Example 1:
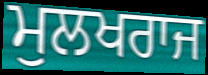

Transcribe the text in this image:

ਮੁਲਖਰਾਜ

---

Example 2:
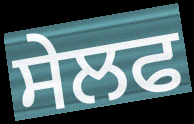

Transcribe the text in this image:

ਸੇਲਫ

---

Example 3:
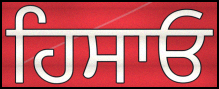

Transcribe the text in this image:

ਹਿਸਾਓ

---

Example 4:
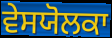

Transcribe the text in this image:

ਵੇਸਯੋਲਕਾ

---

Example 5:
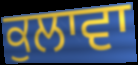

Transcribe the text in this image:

ਕੁਲਾਵਾ